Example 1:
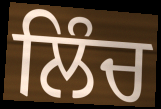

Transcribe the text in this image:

ਲਿੰਚ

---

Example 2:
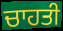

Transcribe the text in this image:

ਚਾਹਤੀ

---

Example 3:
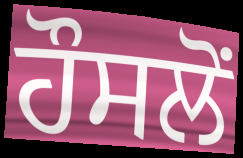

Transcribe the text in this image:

ਹੌਸਲੋਂ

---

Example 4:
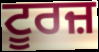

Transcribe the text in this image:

ਟੂਰਜ਼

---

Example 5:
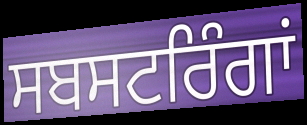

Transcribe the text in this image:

ਸਬਸਟਰਿੰਗਾਂ